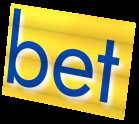
bet